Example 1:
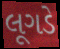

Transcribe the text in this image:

લૂગડે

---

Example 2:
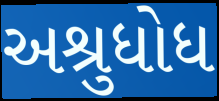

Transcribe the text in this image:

અશ્રુધોધ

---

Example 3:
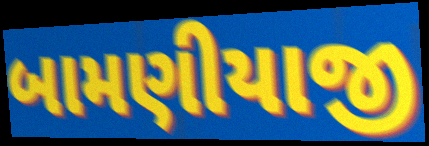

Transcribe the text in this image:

બામણીયાજી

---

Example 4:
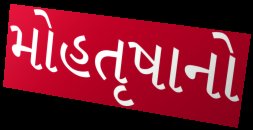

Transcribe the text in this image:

મોહતૃષાનો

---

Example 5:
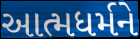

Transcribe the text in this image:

આત્મધર્મને